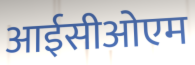
आईसीओएम